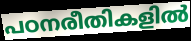
പഠനരീതികളിൽ